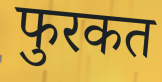
फुरकत